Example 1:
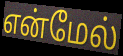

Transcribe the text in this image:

என்மேல்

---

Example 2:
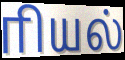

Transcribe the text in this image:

ரியல்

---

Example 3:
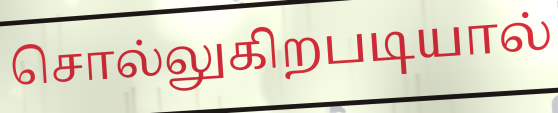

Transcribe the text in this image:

சொல்லுகிறபடியால்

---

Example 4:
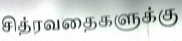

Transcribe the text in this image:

சித்ரவதைகளுக்கு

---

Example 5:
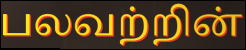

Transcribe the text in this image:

பலவற்றின்